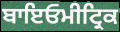
ਬਾਇਓਮੀਟ੍ਰਿਕ